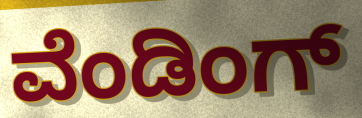
ವೆಂಡಿಂಗ್